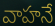
వాహనే